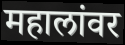
महालांवर